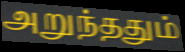
அறுந்ததும்